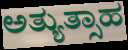
ಅತ್ಯುತ್ಸಾಹ